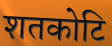
शतकोटि